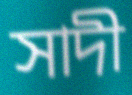
সাদী